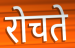
रोचते